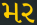
મર